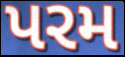
પરમ